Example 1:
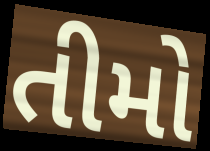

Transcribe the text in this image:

તીમો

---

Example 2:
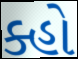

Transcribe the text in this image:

ક્હો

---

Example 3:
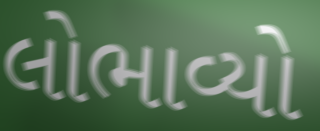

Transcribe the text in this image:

લોભાવ્યો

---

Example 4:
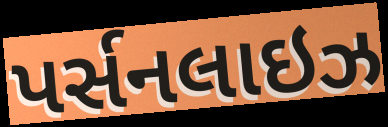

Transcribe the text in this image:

પર્સનલાઇઝ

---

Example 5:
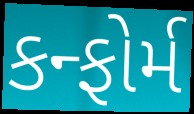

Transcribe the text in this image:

કન્ફોર્મ